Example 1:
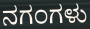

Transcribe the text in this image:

ನಗಂಗಳು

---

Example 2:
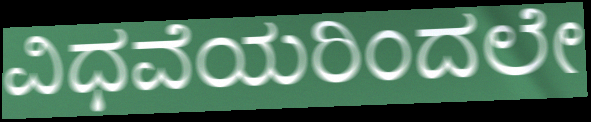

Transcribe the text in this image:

ವಿಧವೆಯರಿಂದಲೇ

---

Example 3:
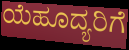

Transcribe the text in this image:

ಯೆಹೂದ್ಯರಿಗೆ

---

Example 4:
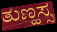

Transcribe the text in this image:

ತುಣ್ಹಸ್ಸ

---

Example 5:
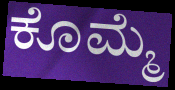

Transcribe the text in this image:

ಕೊಮ್ಮೆ